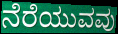
ನೆರೆಯುವವು